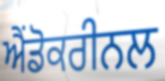
ਐਂਡੋਕਰੀਨਲ